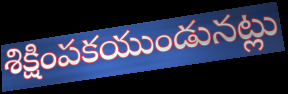
శిక్షింపకయుండునట్లు